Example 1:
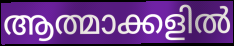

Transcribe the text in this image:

ആത്മാക്കളിൽ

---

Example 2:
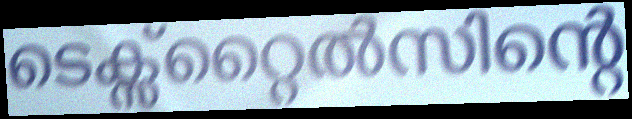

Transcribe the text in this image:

ടെക്സ്റ്റൈൽസിന്റെ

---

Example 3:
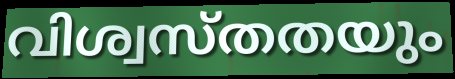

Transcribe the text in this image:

വിശ്വസ്തതയും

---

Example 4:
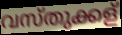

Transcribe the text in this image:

വസ്തുക്കള്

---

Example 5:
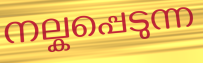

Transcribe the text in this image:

നല്കപ്പെടുന്ന